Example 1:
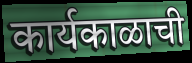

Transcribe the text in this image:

कार्यकाळाची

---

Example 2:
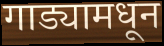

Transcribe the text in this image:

गाड्यामधून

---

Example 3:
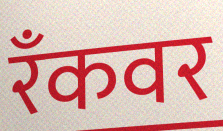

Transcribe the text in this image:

रँकवर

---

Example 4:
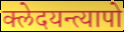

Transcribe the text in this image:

क्लेदयन्त्यापो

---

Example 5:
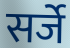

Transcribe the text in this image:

सर्जे